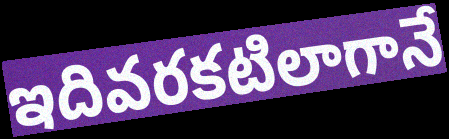
ఇదివరకటిలాగానే